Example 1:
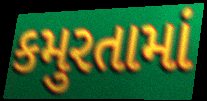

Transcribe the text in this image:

કમુરતામાં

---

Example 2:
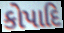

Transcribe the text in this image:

કોપાદિ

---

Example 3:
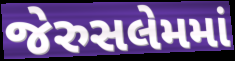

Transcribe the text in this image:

જેરુસલેમમાં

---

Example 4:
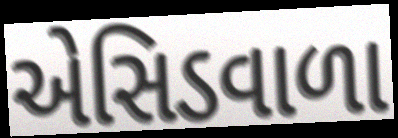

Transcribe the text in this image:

એસિડવાળા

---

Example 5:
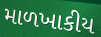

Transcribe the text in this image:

માળખાકીય